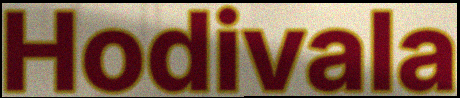
Hodivala